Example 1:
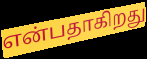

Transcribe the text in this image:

என்பதாகிறது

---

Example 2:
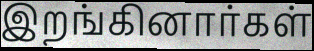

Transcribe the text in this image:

இறங்கினார்கள்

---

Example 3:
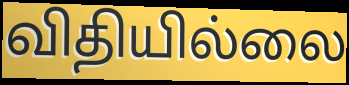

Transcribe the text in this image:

விதியில்லை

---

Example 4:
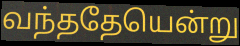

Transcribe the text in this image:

வந்ததேயென்று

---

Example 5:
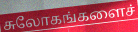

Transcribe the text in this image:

சுலோகங்களைச்